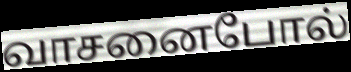
வாசனைபோல்